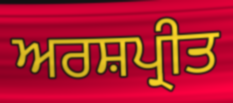
ਅਰਸ਼ਪ੍ਰੀਤ